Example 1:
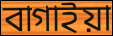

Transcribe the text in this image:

বাগাইয়া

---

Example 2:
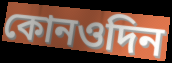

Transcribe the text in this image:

কোনওদিন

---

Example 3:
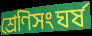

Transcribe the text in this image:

শ্রেণিসংঘর্ষ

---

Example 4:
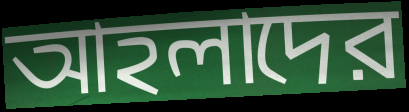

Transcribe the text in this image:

আহলাদের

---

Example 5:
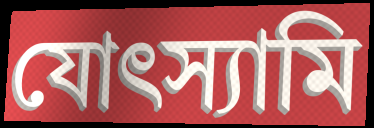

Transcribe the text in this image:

যোৎস্যামি